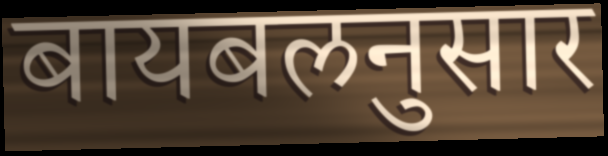
बायबलनुसार